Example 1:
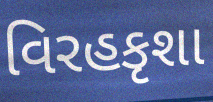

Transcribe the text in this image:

વિરહકૃશા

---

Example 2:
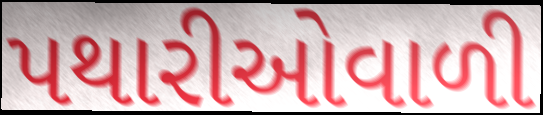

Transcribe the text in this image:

પથારીઓવાળી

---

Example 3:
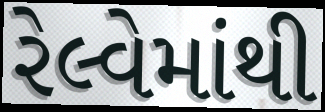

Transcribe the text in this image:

રેલ્વેમાંથી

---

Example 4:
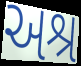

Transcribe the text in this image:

અશ્ર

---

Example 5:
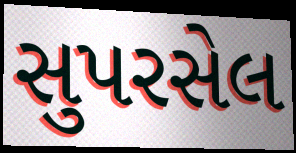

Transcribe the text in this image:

સુપરસેલ